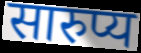
सारुप्य